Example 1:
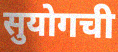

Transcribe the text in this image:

सुयोगची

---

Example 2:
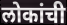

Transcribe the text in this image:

लोकांची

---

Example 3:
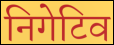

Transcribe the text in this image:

निगेटिव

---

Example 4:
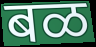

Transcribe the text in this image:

बळ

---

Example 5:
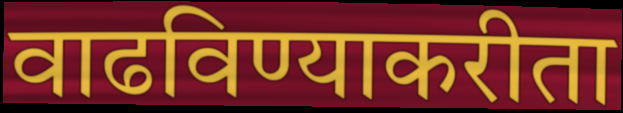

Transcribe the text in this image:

वाढविण्याकरीता